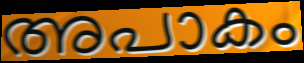
അപാകം